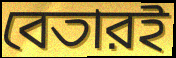
বেতারই